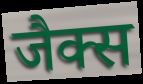
जैक्स